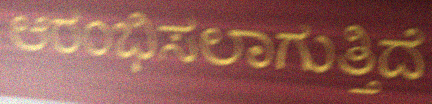
ಆರಂಭಿಸಲಾಗುತ್ತಿದೆ